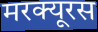
मरक्यूरस